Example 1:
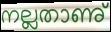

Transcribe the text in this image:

നല്ലതാണു്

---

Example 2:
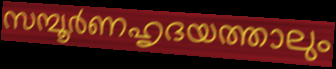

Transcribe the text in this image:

സമ്പൂർണഹൃദയത്താലും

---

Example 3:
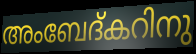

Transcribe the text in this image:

അംബേദ്കറിനു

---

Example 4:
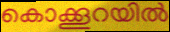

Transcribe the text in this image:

കൊക്കൂറയിൽ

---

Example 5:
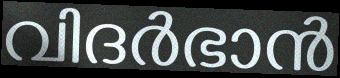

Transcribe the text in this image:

വിദർഭാൻ